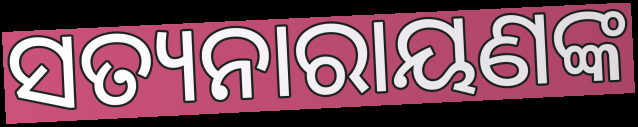
ସତ୍ୟନାରାୟଣଙ୍କ